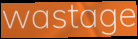
wastage